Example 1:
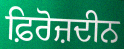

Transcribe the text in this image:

ਫ਼ਿਰੋਜ਼ਦੀਨ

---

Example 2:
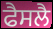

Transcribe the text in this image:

ਫੈਸਲੈ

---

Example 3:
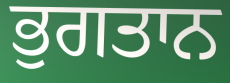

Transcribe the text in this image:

ਭੁਗਤਾਨ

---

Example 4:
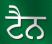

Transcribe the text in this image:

ਟੈਨ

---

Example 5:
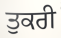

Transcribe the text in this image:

ਤੁਕਰੀ